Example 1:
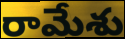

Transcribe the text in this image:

రామేశు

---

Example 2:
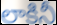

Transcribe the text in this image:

లాకినీ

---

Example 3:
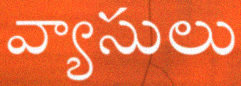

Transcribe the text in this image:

వ్యాసులు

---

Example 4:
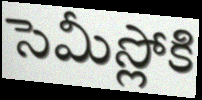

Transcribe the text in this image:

సెమీస్లోకి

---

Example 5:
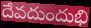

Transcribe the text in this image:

దేవదుందుభి